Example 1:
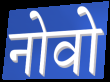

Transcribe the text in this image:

नोवो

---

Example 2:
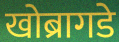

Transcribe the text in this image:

खोब्रागडे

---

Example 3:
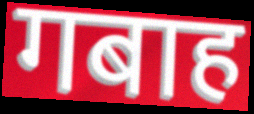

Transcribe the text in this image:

गबाह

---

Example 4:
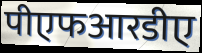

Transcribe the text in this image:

पीएफआरडीए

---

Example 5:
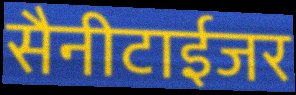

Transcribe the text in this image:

सैनीटाईजर